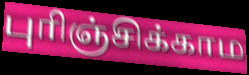
புரிஞ்சிக்காம